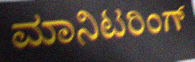
ಮಾನಿಟರಿಂಗ್